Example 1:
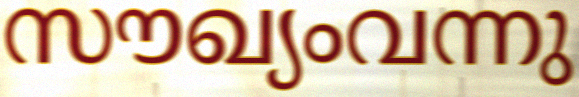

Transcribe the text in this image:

സൗഖ്യംവന്നു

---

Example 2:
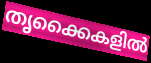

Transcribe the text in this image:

തൃക്കൈകളിൽ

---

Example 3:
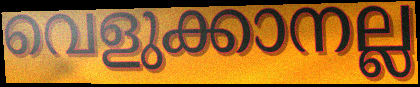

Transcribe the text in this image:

വെളുക്കാനല്ല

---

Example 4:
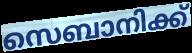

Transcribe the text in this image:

സെബാനിക്ക്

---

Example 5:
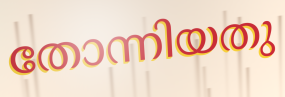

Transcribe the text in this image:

തോന്നിയതു